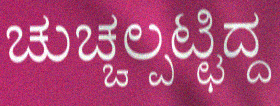
ಚುಚ್ಚಲ್ಪಟ್ಟಿದ್ದ